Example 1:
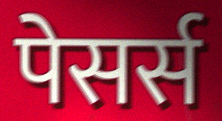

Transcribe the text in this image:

पेसर्स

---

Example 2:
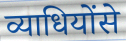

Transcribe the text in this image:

व्याधियोंसे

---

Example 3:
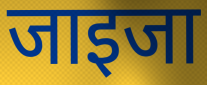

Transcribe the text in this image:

जाइजा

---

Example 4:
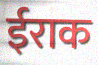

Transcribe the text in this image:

ईराक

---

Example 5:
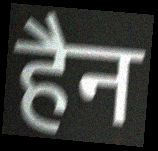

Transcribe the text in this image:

हैन